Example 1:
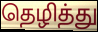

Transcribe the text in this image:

தெழித்து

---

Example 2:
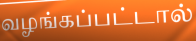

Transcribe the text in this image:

வழங்கப்பட்டால்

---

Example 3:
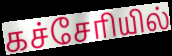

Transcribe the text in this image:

கச்சேரியில்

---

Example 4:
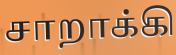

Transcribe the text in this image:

சாறாக்கி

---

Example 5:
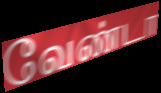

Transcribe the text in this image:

வேண்டா